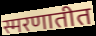
स्मरणातीत